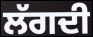
ਲੱਗਦੀ